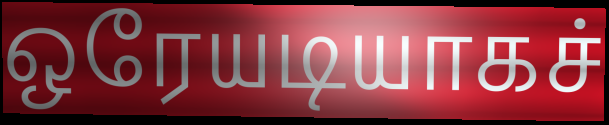
ஒரேயடியாகச்